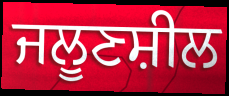
ਜਲੂਣਸ਼ੀਲ